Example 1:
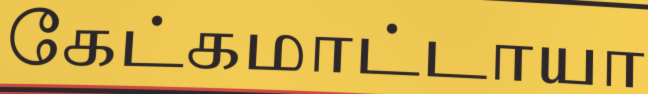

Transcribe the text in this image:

கேட்கமாட்டாயா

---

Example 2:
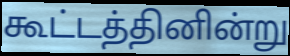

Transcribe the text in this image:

கூட்டத்தினின்று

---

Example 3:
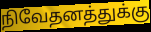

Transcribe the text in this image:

நிவேதனத்துக்கு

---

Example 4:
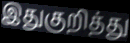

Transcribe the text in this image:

இதுகுறித்து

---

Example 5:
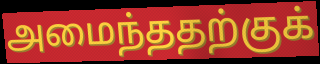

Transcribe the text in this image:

அமைந்ததற்குக்